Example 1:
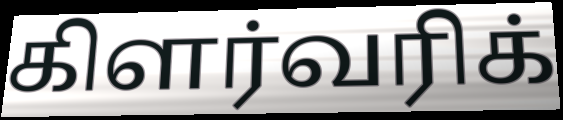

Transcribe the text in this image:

கிளர்வரிக்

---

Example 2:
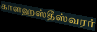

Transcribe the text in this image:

காளஹஸ்தீஸ்வரர்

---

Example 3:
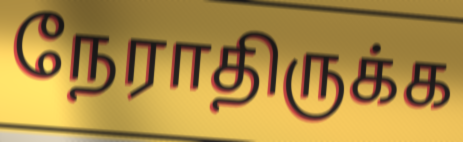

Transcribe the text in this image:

நேராதிருக்க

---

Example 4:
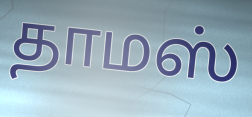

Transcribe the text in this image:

தாமஸ்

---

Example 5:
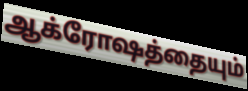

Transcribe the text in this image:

ஆக்ரோஷத்தையும்